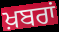
ਖ਼ਬਰਾਂ